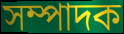
সম্পাদক